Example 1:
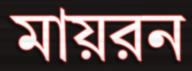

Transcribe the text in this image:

মায়রন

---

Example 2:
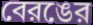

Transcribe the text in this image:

বেরঙের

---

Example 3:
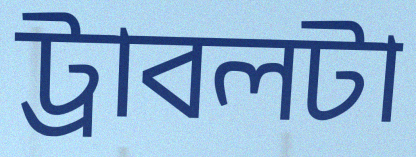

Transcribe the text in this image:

ট্রাবলটা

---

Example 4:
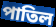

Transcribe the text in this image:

পাতিল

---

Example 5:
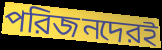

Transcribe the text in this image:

পরিজনদেরই